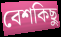
বেশকিছু